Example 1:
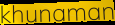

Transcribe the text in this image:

khunaman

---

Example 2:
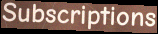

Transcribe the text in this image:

Subscriptions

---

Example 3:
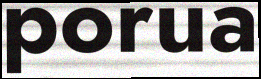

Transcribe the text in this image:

porua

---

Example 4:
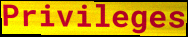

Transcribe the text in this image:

Privileges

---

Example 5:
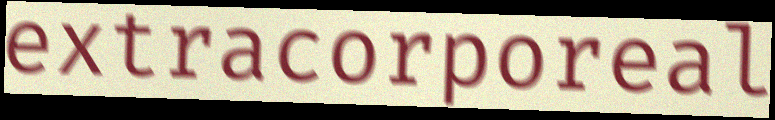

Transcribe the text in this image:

extracorporeal